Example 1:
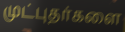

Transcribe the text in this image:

முட்புதர்களை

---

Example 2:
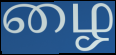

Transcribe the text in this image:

ழை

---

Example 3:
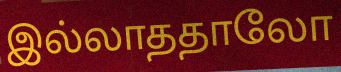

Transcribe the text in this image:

இல்லாததாலோ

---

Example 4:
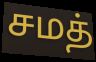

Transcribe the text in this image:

சமத்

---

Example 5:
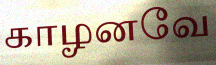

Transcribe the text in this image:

காழனவே